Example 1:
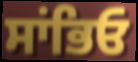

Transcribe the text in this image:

ਸਾਂਭਿਓ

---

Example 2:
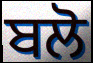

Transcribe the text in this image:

ਬਲੋ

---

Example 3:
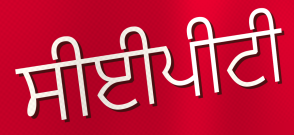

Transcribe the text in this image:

ਸੀਈਪੀਟੀ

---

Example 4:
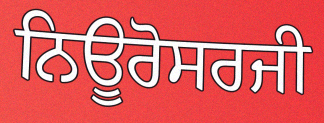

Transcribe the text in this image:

ਨਿਊਰੋਸਰਜੀ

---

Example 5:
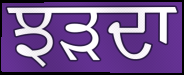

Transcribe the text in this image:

ਝੜਦਾ